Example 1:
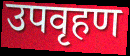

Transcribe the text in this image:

उपवृहण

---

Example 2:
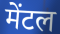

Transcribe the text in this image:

मेंटल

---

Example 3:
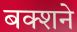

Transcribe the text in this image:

बक्शने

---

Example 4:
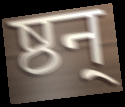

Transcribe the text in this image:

ष्ठन्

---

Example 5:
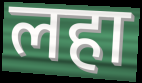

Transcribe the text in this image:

लहा